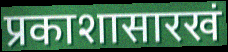
प्रकाशासारखं